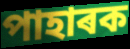
পাহাৰক